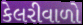
કેલરીવાળો